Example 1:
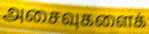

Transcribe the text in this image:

அசைவுகளைக்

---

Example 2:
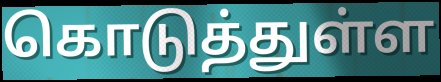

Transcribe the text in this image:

கொடுத்துள்ள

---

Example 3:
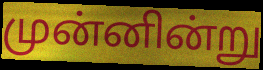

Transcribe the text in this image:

முன்னின்று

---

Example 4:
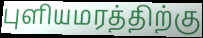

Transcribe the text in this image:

புளியமரத்திற்கு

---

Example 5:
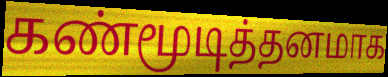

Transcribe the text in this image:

கண்மூடித்தனமாக